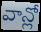
వాన్లో